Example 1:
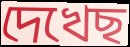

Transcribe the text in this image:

দেখেছ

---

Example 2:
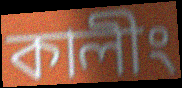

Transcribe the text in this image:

কালীং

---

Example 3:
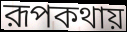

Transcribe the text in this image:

রূপকথায়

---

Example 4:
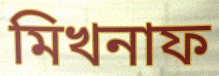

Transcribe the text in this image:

মিখনাফ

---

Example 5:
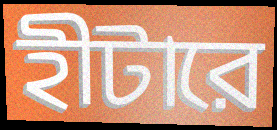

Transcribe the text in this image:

হীটারে